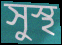
সুস্থ